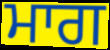
ਮਾਗ